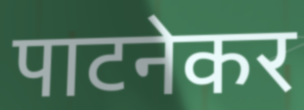
पाटनेकर